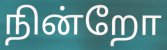
நின்றோ